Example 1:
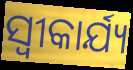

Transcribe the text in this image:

ସ୍ୱୀକାର୍ଯ୍ୟ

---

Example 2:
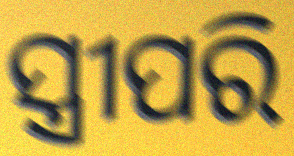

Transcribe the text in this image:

ସ୍ତ୍ରୀପରି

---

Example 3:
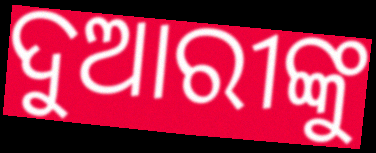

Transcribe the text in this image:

ଦୁଆରୀଙ୍କୁ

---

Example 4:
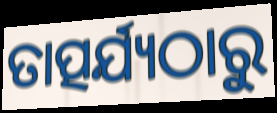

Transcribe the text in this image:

ତାତ୍ପର୍ଯ୍ୟଠାରୁ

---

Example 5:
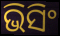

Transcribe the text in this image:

ଭିସିଂ